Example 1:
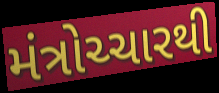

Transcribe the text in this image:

મંત્રોચ્ચારથી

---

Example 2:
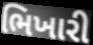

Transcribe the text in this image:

ભિખારી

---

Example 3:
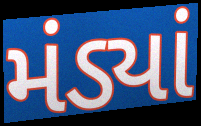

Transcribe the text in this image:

મંડ્યાં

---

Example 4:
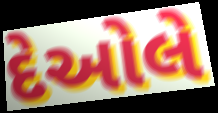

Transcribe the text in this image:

દેઓલે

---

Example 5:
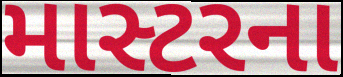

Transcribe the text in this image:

માસ્ટરના